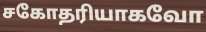
சகோதரியாகவோ